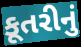
કૂતરીનું